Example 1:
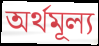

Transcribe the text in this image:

অর্থমূল্য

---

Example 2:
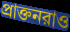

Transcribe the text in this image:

প্রাক্তনরাও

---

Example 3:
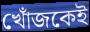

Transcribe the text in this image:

খোঁজকেই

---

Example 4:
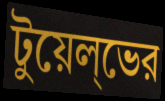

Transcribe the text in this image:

টুয়েল্ভের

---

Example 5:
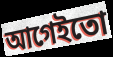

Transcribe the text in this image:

আগেইতো